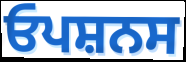
ਓਪਸ਼ਨਸ